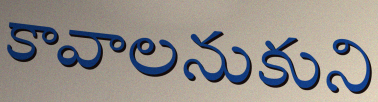
కావాలనుకుని